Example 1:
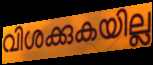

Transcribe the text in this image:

വിശക്കുകയില്ല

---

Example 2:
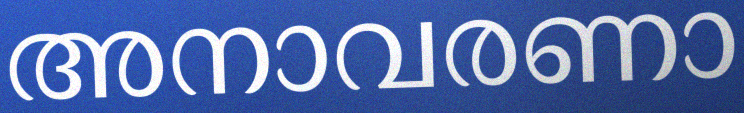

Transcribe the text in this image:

അനാവരണാ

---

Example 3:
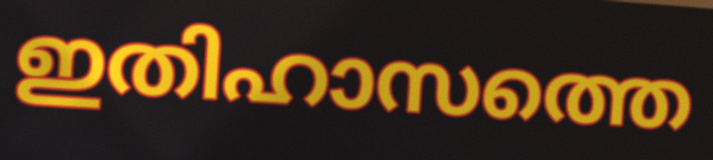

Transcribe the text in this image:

ഇതിഹാസത്തെ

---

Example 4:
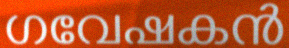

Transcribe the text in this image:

ഗവേഷകൻ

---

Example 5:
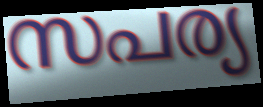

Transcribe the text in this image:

സപര്യ